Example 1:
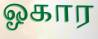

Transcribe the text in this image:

ஓகார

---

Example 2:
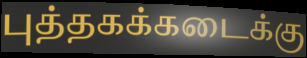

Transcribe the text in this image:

புத்தகக்கடைக்கு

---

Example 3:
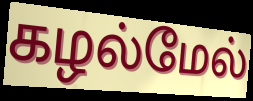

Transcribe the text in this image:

கழல்மேல்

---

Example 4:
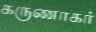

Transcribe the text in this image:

கருணாகர்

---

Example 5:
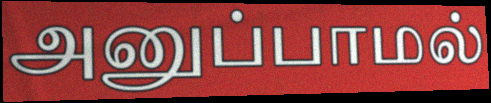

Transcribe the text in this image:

அனுப்பாமல்